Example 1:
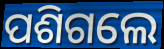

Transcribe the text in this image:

ପଶିଗଲେ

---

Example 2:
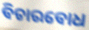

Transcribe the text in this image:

ବିଚାରବୋଧ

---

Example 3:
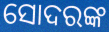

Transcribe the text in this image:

ସୋଦରଙ୍କ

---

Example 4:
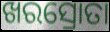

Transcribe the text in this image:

ଖରସ୍ରୋତା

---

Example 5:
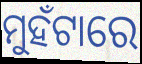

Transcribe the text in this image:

ମୁହଁଟାରେ